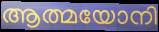
ആത്മയോനി